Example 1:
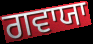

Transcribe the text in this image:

ਗਵਾਯਾ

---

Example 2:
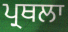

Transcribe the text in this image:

ਪ੍ਰਥਲਾ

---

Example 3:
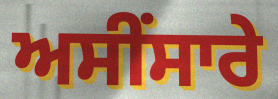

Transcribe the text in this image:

ਅਸੀਂਸਾਰੇ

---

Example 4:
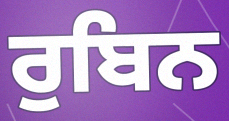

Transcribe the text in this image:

ਰੁਬਿਨ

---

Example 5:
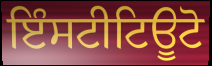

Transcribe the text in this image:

ਇੰਸਟੀਟਿਊਟੋ